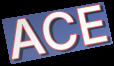
ACE